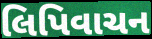
લિપિવાચન